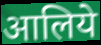
आलिये